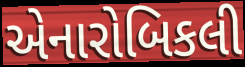
એનારોબિકલી